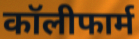
कॉलीफार्म